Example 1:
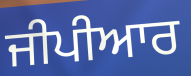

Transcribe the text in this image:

ਜੀਪੀਆਰ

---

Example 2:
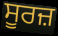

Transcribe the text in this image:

ਸੂਰਜ਼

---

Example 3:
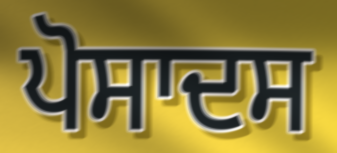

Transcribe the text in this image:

ਪੋਸਾਦਸ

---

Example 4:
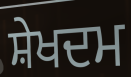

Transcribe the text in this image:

ਸ਼ੇਖਦਮ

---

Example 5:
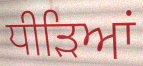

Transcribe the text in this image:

ਧੀੜਿਆਂ